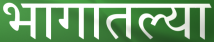
भागातल्या